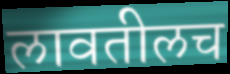
लावतीलच